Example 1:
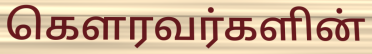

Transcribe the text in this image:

கௌரவர்களின்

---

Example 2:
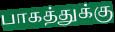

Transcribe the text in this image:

பாகத்துக்கு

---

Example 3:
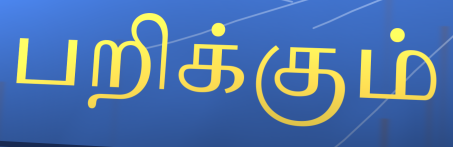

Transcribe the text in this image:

பறிக்கும்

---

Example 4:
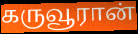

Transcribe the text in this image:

கருவூரான்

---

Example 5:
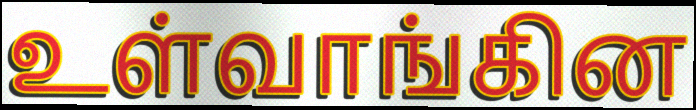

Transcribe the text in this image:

உள்வாங்கின